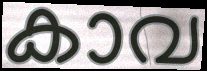
കാവ